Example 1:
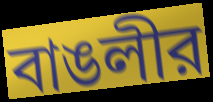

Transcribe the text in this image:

বাঙলীর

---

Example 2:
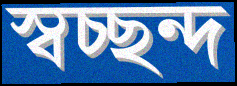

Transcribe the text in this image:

স্বচ্ছন্দ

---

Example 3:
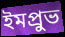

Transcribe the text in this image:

ইমপ্রুভ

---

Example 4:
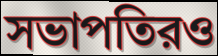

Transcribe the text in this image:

সভাপতিরও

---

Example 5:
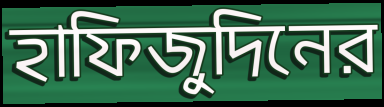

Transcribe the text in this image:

হাফিজুদিনের